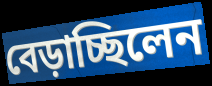
বেড়াচ্ছিলেন